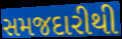
સમજદારીથી